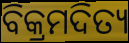
ବିକ୍ରମଦିତ୍ୟ